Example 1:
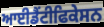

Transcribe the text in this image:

ਆਈਡੈਂਟੀਫਿਕੇਸਨ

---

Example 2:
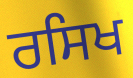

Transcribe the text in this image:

ਰਸਿਖ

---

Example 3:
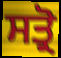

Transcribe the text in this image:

ਸਤ੍ਰੋ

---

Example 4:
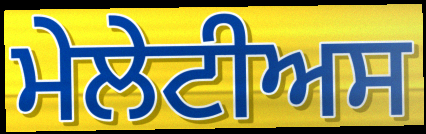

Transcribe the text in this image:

ਮੇਲੇਟੀਅਸ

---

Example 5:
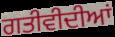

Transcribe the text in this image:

ਗਤੀਵੀਦੀਆਂ